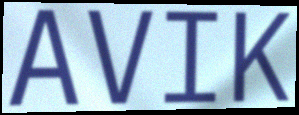
AVIK